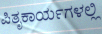
ಪಿತೃಕಾರ್ಯಗಳಲ್ಲಿ